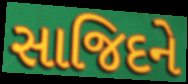
સાજિદને